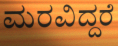
ಮರವಿದ್ದರೆ